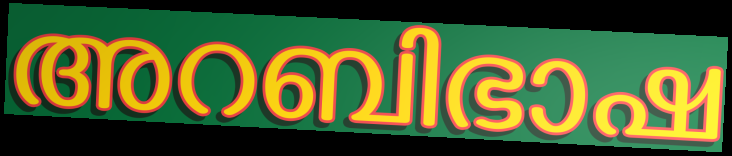
അറബിഭാഷ